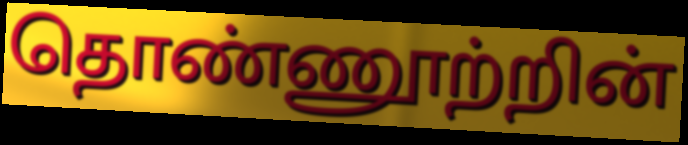
தொண்ணூற்றின்